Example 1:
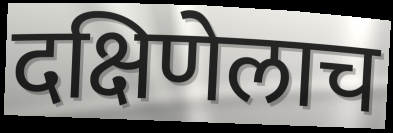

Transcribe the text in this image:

दक्षिणेलाच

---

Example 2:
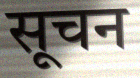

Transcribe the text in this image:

सूचन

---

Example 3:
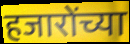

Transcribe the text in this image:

हजारोंच्या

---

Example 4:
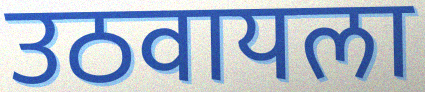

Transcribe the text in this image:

उठवायला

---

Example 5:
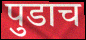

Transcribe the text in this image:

पुडाच